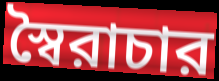
স্বৈরাচার